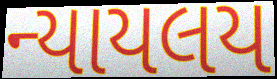
ન્યાયલય